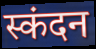
स्कंदन